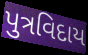
પુત્રવિદાય